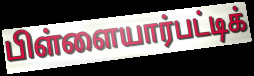
பிள்ளையார்பட்டிக்